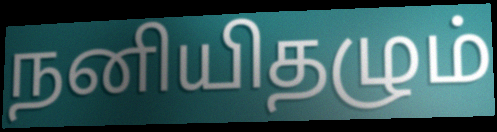
நனியிதழும்